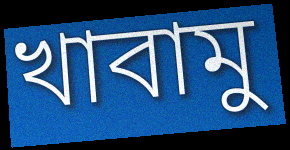
খাবামু